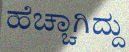
ಹೆಚ್ಚಾಗಿದ್ದು